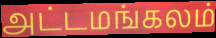
அட்டமங்கலம்